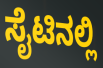
ಸೈಟಿನಲ್ಲಿ